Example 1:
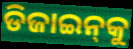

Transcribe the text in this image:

ଡିଜାଇନ୍‌କୁ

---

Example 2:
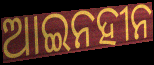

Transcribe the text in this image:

ଆଇନହୀନ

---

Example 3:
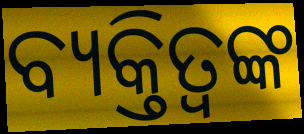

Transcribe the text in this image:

ବ୍ୟକ୍ତିତ୍ବଙ୍କ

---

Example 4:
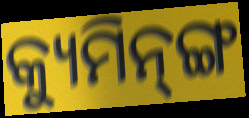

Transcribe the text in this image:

କ୍ୟୁମିନ୍‌ଙ୍ଗ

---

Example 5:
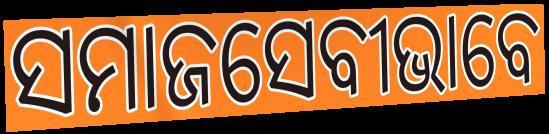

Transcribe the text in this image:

ସମାଜସେବୀଭାବେ